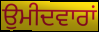
ਉਮੀਦਵਾਰਾਂ